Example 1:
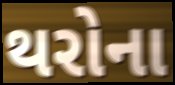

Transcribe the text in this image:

થરોના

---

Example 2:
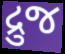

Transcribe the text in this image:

દ્રુજ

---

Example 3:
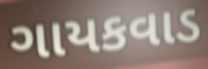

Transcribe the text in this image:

ગાયકવાડ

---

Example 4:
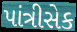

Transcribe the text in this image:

પાંત્રીસેક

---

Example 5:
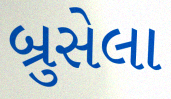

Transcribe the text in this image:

બ્રુસેલા